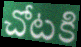
చోటకి